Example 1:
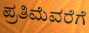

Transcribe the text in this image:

ಪ್ರತಿಮೆವರೆಗೆ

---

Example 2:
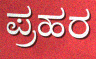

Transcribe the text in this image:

ಪ್ರಹರ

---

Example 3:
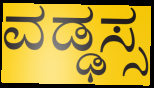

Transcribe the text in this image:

ವಡ್ಢಸ್ಸ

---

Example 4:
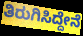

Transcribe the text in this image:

ತಿರುಗಿಸಿದ್ದೇನೆ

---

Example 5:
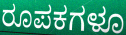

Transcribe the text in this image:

ರೂಪಕಗಳೂ